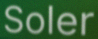
Soler